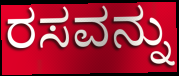
ರಸವನ್ನು